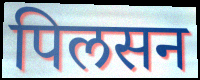
पिलसन